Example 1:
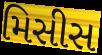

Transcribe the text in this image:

મિસીસ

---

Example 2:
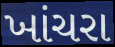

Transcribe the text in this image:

ખાંચરા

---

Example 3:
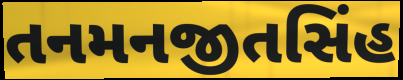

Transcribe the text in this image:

તનમનજીતસિંહ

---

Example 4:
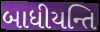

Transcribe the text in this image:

બાધીયન્તિ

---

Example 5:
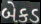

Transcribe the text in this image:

બેકડ